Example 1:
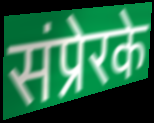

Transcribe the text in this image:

संप्रेरके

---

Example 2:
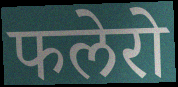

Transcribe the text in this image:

फलेरो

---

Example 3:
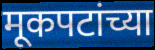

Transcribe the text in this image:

मूकपटांच्या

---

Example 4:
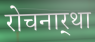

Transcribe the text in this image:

रोचनार्था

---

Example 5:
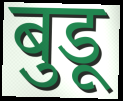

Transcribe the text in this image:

बुडू